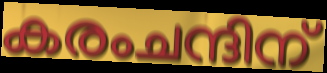
കരംചന്ദിന്